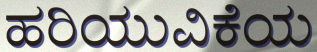
ಹರಿಯುವಿಕೆಯ